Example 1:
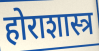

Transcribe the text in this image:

होराशास्त्र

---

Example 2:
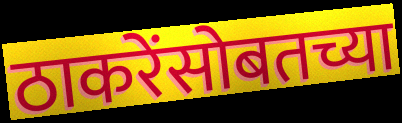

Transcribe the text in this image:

ठाकरेंसोबतच्या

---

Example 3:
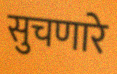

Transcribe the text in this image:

सुचणारे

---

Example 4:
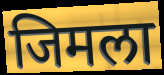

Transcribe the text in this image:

जिमला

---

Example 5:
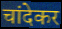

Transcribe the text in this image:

चांदेकर